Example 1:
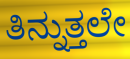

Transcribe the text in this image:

ತಿನ್ನುತ್ತಲೇ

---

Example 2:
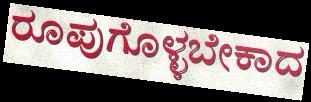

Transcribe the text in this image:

ರೂಪುಗೊಳ್ಳಬೇಕಾದ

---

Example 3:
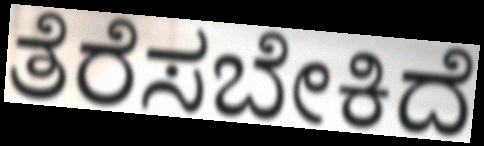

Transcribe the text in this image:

ತೆರೆಸಬೇಕಿದೆ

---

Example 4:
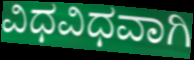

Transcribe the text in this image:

ವಿಧವಿಧವಾಗಿ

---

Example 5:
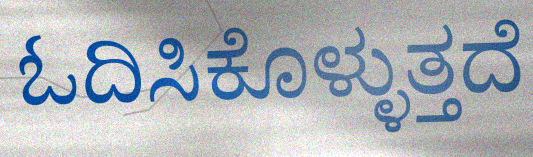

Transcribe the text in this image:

ಓದಿಸಿಕೊಳ್ಳುತ್ತದೆ